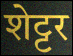
शेट्टर